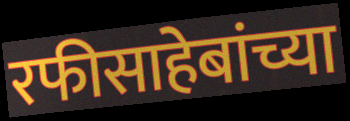
रफीसाहेबांच्या